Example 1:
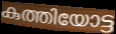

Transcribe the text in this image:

കുത്തിയോട്ട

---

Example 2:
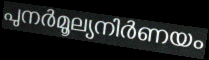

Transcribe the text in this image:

പുനർമൂല്യനിർണയം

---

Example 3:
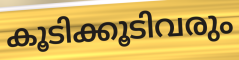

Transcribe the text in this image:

കൂടിക്കൂടിവരും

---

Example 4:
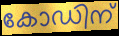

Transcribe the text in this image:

കോഡിന്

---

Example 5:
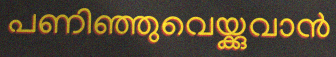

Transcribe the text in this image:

പണിഞ്ഞുവെയ്ക്കുവാൻ